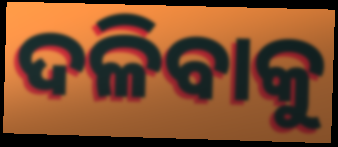
ଦଳିବାକୁ